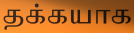
தக்கயாக